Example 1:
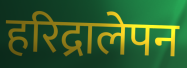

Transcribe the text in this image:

हरिद्रालेपन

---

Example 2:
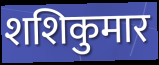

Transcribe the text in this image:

शशिकुमार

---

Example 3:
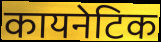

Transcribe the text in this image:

कायनेटिक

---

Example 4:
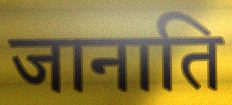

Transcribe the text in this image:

जानाति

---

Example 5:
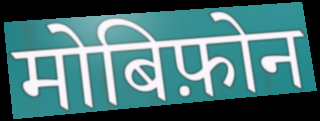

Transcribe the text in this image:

मोबिफ़ोन